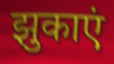
झुकाएं